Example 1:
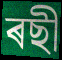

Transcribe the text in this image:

ৰছী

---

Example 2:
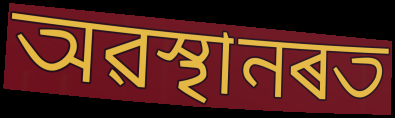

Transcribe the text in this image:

অৱস্থানৰত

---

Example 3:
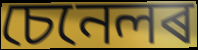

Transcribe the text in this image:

চেনেলৰ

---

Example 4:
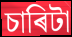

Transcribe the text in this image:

চাৰিটা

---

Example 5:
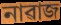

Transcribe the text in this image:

নাৱাজ